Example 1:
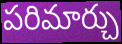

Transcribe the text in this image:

పరిమార్చు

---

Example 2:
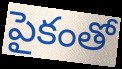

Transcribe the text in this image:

పైకంతో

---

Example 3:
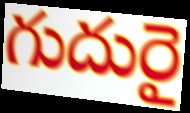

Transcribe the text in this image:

గుదురై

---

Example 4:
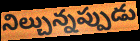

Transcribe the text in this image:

నిల్చున్నప్పుడు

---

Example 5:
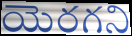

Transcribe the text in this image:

యెరగని